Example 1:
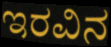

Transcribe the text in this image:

ಇರವಿನ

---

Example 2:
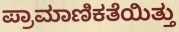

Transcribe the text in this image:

ಪ್ರಾಮಾಣಿಕತೆಯಿತ್ತು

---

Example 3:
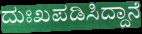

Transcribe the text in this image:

ದುಃಖಪಡಿಸಿದ್ದಾನೆ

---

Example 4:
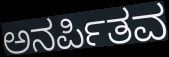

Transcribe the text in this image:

ಅನರ್ಪಿತವ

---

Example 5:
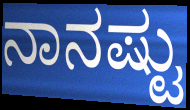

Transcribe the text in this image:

ನಾನಷ್ಟು